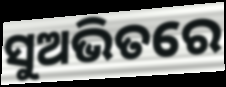
ସୁଅଭିତରେ